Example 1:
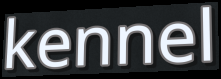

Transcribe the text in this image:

kennel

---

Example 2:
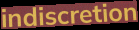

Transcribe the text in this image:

indiscretion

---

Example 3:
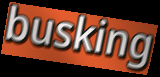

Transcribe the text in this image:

busking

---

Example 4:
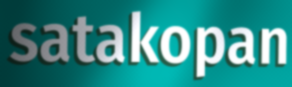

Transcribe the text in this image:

satakopan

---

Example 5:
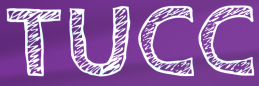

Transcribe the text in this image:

TUCC